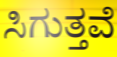
ಸಿಗುತ್ತವೆ